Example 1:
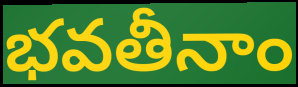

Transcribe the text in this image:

భవతీనాం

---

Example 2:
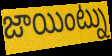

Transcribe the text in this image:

జాయింట్ను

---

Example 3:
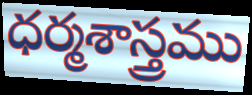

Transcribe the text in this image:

ధర్మశాస్త్రము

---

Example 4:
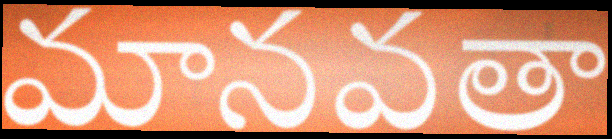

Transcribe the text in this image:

మానవతా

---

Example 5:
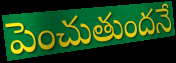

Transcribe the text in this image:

పెంచుతుందనే